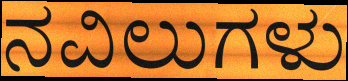
ನವಿಲುಗಳು